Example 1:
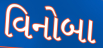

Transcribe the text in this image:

વિનોબા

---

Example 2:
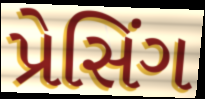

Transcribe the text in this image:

પ્રેસિંગ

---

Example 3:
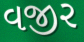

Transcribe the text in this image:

વજીર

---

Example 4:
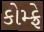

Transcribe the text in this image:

કોમ્ફ્રે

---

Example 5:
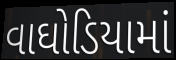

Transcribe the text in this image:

વાઘોડિયામાં